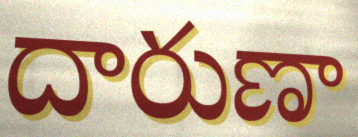
దారుణా